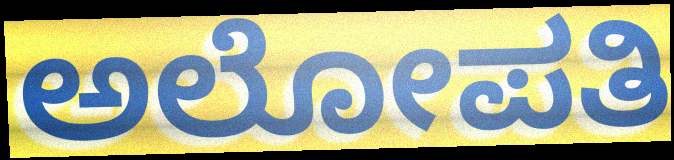
ಅಲೋಪತಿ